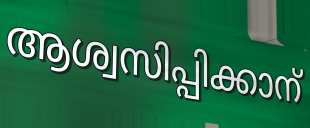
ആശ്വസിപ്പിക്കാന്